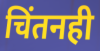
चिंतनही